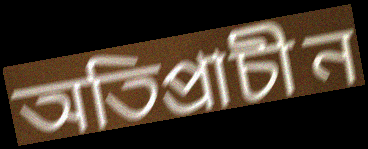
অতিপ্রাচীন